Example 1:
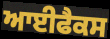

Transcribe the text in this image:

ਆਈਫੈਕਸ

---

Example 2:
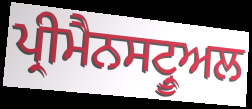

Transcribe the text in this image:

ਪ੍ਰੀਮੈਨਸਟ੍ਰੂਅਲ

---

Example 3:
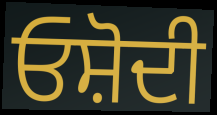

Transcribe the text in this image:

ਓਸ਼ੋਦੀ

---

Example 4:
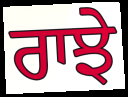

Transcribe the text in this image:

ਰਾਝੇ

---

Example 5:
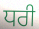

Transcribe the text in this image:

ਧਰੀ